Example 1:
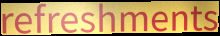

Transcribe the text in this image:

refreshments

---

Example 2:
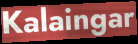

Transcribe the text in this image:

Kalaingar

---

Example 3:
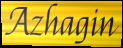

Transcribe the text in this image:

Azhagin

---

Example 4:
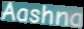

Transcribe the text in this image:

Aashna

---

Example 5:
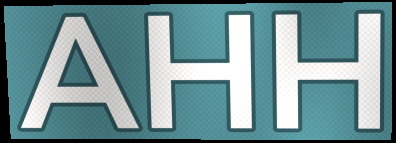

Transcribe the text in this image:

AHH